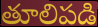
తూలిపడి